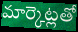
మార్కెట్లతో